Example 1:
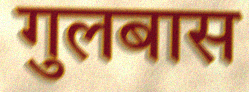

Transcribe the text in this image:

गुलबास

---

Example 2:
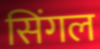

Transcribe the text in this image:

सिंगल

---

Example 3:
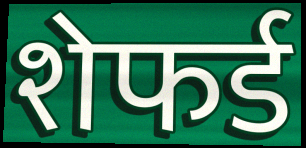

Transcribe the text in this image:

शेफर्ड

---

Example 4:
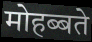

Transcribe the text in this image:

मोहब्बते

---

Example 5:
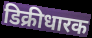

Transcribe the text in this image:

डिक्रीधारक